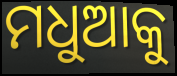
ମଧୁଆକୁ